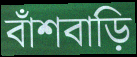
বাঁশবাড়ি